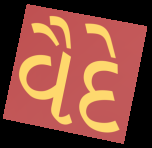
વૈદે